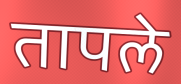
तापले